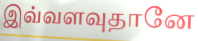
இவ்வளவுதானே